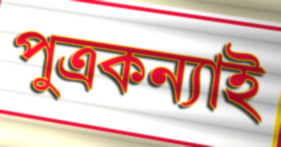
পুত্রকন্যাই